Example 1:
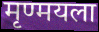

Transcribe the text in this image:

मृण्मयला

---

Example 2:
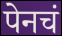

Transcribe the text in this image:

पेनचं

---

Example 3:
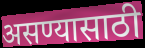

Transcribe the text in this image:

असण्यासाठी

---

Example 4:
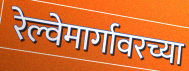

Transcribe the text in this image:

रेल्वेमार्गावरच्या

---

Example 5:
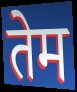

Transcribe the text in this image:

तेम